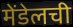
मेंडेलची